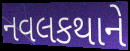
નવલકથાને